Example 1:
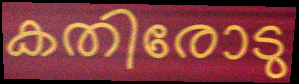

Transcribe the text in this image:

കതിരോടു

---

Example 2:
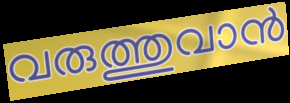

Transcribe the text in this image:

വരുത്തുവാൻ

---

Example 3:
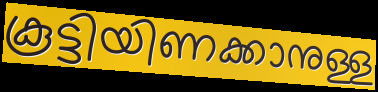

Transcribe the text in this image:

കൂട്ടിയിണക്കാനുള്ള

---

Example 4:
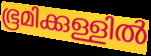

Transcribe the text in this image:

ഭൂമിക്കുള്ളിൽ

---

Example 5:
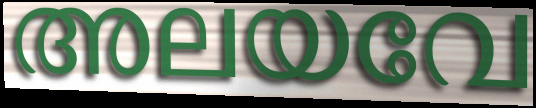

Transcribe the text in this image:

അലയവേ